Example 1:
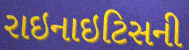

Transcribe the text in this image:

રાઇનાઇટિસની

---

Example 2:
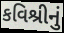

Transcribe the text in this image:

કવિશ્રીનું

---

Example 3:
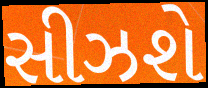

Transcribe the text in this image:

સીઝશે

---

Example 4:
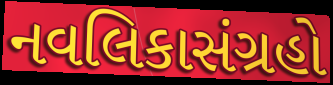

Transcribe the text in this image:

નવલિકાસંગ્રહો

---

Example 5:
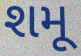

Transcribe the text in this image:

શમૂ